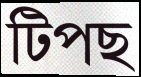
টিপছ